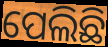
ପେଲିଛି